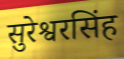
सुरेश्वरसिंह